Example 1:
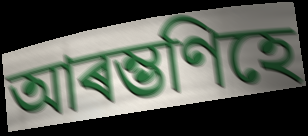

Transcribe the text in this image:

আৰম্ভণিহে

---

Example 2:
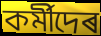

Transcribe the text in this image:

কৰ্মীদেৰ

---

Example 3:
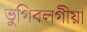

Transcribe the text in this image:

ভুগিবলগীয়া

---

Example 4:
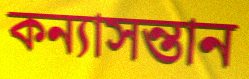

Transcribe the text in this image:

কন্যাসন্তান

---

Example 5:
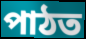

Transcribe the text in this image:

পাঠত